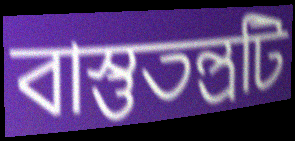
বাস্তুতন্ত্রটি